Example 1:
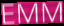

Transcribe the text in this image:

EMM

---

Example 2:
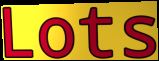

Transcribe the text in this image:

Lots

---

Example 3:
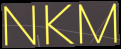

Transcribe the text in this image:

NKM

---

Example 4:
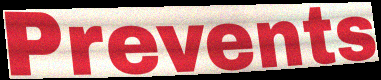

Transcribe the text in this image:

Prevents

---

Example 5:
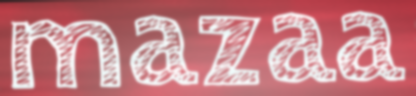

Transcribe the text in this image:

mazaa